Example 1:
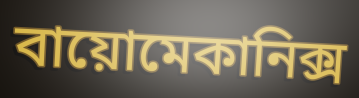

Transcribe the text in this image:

বায়োমেকানিক্স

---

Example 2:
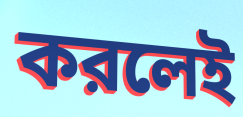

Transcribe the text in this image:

করলেই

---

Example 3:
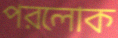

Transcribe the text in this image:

পরলোক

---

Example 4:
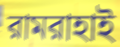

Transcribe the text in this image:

রামরাহাই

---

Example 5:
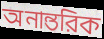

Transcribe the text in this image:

অনান্তরিক